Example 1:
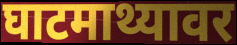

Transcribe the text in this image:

घाटमाथ्यावर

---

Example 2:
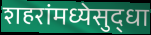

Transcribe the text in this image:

शहरांमध्येसुद्धा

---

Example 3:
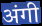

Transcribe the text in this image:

अंगी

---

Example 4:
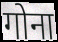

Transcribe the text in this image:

गोना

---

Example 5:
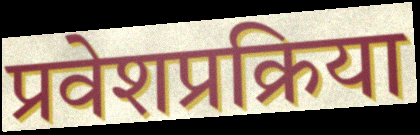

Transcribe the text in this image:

प्रवेशप्रक्रिया